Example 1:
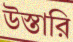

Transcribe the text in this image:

উস্তারি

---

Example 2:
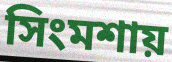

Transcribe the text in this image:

সিংমশায়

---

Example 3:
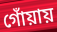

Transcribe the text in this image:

গোঁয়ায়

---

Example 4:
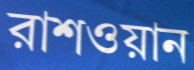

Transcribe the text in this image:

রাশওয়ান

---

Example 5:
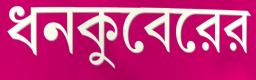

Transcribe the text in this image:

ধনকুবেরের